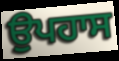
ਉਪਹਾਸ